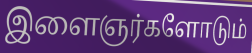
இளைஞர்களோடும்